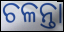
ଚଳନ୍ତା